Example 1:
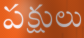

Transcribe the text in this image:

పక్షులు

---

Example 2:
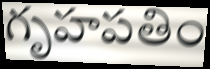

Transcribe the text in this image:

గృహపతిం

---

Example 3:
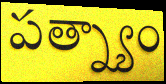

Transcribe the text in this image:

పత్న్యాం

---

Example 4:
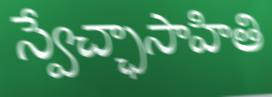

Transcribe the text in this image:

స్వేచ్ఛాసాహితి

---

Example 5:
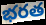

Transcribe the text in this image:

భరత